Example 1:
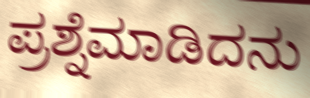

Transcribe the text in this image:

ಪ್ರಶ್ನೆಮಾಡಿದನು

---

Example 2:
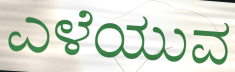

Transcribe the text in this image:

ಎಳೆಯುವ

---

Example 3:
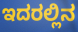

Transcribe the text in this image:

ಇದರಲ್ಲಿನ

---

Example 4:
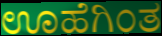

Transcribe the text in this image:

ಊಹೆಗಿಂತ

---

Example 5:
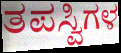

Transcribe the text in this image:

ತಪಸ್ವಿಗಳ